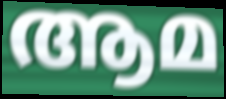
ആമ